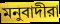
মনুবাদীরা